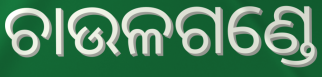
ଚାଉଳଗଣ୍ଡେ